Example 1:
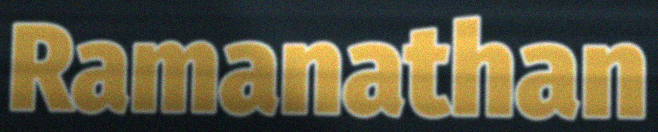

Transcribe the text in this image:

Ramanathan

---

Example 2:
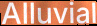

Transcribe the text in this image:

Alluvial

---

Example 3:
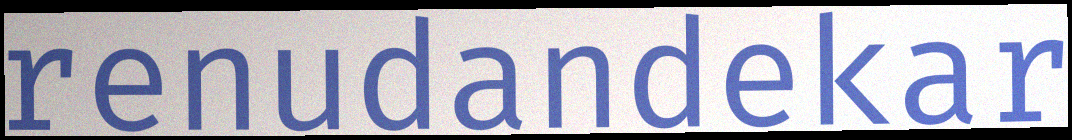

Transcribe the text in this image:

renudandekar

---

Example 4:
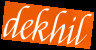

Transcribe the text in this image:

dekhil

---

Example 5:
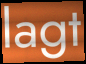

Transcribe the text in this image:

lagt